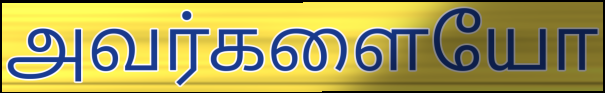
அவர்களையோ